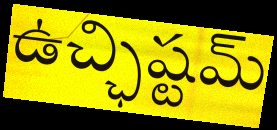
ఉచ్ఛిష్టమ్